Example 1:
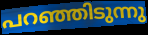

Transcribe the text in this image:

പറഞ്ഞിടുന്നു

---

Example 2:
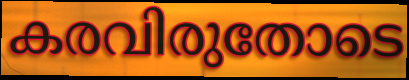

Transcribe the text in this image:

കരവിരുതോടെ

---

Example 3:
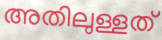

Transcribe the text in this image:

അതിലുള്ളത്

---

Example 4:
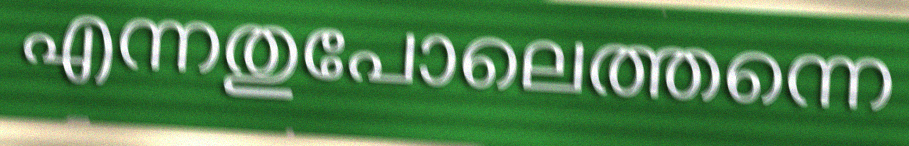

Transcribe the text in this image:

എന്നതുപോലെത്തന്നെ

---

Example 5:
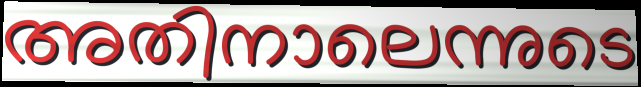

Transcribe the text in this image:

അതിനാലെന്നുടെ